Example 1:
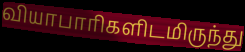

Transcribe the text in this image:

வியாபாரிகளிடமிருந்து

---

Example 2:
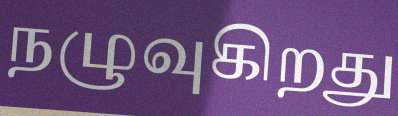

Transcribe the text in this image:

நழுவுகிறது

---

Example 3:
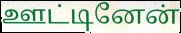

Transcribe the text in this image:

ஊட்டினேன்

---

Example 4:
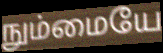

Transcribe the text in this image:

நும்மையே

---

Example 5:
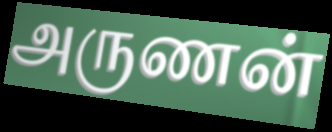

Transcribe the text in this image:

அருணன்